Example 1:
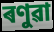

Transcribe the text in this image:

ৰণুৱা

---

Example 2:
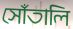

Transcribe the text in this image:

সোঁতালি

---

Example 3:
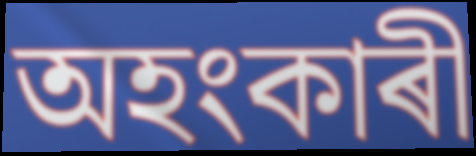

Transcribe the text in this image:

অহংকাৰী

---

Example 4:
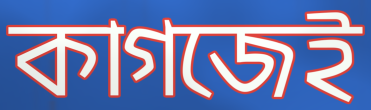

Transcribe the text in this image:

কাগজেই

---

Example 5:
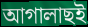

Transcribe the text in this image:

আগালাছই